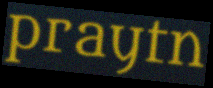
praytn